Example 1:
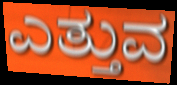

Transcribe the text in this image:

ಎತ್ತುವ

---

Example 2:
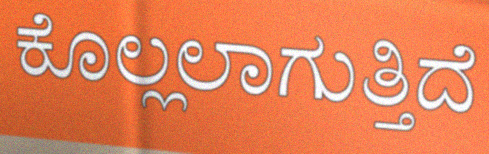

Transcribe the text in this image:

ಕೊಲ್ಲಲಾಗುತ್ತಿದೆ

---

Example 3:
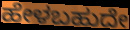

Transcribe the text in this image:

ಹೇಳಬಹುದೇ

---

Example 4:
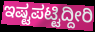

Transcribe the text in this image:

ಇಷ್ಟಪಟ್ಟಿದ್ದೀರಿ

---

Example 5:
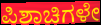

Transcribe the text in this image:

ಪಿಶಾಚಿಗಳೇ